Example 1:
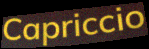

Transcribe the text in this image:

Capriccio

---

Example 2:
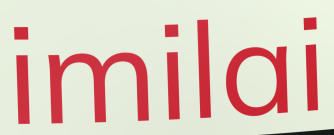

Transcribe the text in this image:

imilai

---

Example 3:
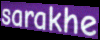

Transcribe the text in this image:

sarakhe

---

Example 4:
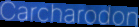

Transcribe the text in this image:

Carcharodon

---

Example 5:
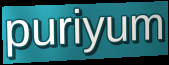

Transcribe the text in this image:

puriyum